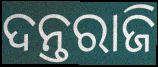
ଦନ୍ତରାଜି